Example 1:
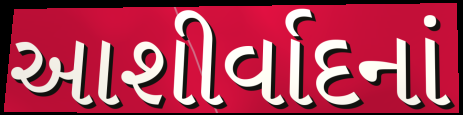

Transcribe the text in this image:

આશીર્વાદનાં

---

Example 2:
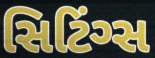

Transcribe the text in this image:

સિટિંગ્સ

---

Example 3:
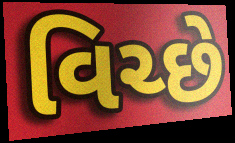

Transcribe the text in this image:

વિચ્છે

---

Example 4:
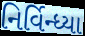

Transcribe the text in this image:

નિર્વિન્ધ્યા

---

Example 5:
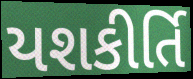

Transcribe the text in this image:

યશકીર્તિ